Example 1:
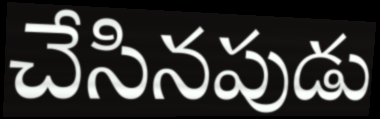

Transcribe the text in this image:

చేసినపుడు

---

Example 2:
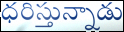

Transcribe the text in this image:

ధరిస్తున్నాడు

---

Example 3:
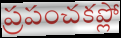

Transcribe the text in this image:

ప్రపంచకప్లో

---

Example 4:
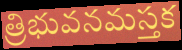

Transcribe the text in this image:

త్రిభువనమస్తక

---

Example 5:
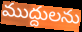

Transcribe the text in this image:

ముద్దులను